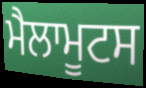
ਮੈਲਾਮੂਟਸ